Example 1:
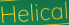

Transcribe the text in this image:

Helical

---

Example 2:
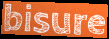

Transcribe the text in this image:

bisure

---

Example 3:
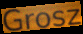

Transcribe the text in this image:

Grosz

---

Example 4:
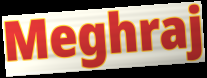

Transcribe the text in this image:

Meghraj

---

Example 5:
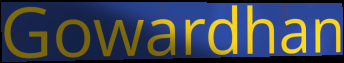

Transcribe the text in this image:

Gowardhan